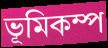
ভূমিকম্প